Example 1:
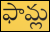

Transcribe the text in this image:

ఫామ్ల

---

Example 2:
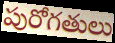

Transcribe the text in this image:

పురోగతులు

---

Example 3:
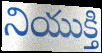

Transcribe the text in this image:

నియుక్తి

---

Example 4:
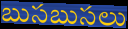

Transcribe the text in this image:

బుసబుసలు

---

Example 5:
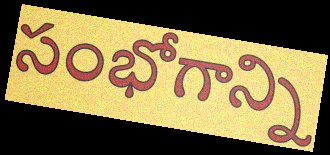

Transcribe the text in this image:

సంభోగాన్ని